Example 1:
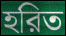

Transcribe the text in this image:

হরিত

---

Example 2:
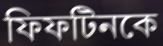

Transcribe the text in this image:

ফিফটিনকে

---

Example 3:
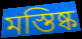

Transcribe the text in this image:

মস্তিষ্ক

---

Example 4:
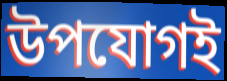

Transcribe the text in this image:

উপযোগই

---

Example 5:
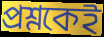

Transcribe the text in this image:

প্রশ্নকেই